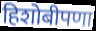
हिशोबीपणा